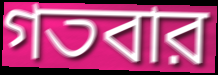
গতবার